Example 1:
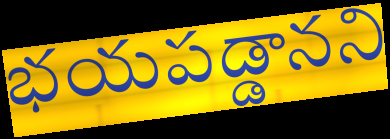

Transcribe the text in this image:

భయపడ్డానని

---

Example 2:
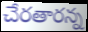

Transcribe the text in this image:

చేరతారన్న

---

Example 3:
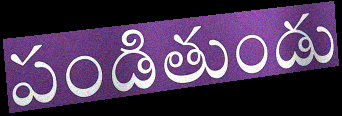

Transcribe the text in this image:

పండితుండు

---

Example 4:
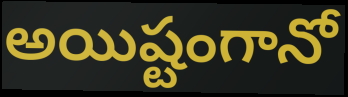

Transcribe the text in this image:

అయిష్టంగానో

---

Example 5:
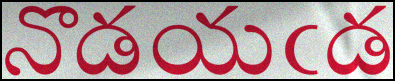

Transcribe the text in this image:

నొడయఁడ